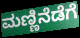
ಮಣ್ಣಿನೆಡೆಗೆ